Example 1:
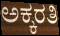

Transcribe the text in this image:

ಅಕ್ಕರತಿ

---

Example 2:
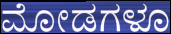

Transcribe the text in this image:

ಮೋಡಗಳೂ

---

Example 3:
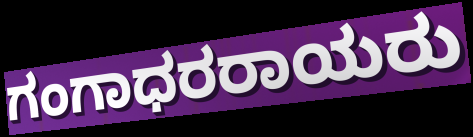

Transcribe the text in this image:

ಗಂಗಾಧರರಾಯರು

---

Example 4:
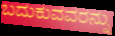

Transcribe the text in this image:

ಬದುಕುವವರನ್ನು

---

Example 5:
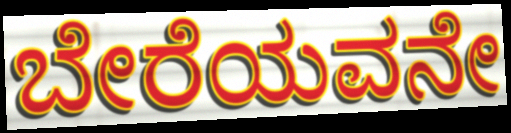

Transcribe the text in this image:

ಬೇರೆಯವನೇ